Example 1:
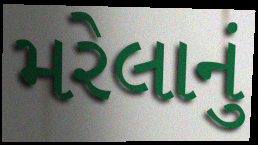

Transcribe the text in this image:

મરેલાનું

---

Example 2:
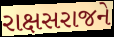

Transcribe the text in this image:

રાક્ષસરાજને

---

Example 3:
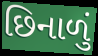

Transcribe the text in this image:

છિનાળું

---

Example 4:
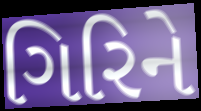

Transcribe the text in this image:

ગિરિને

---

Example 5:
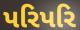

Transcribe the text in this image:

પરિપરિ